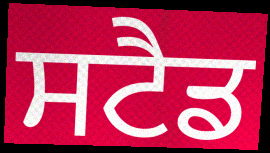
ਸਟੈਡ